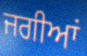
ਜਗੀਆਂ